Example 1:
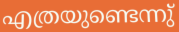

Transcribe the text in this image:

എത്രയുണ്ടെന്നു്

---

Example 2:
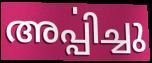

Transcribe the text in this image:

അൎപ്പിച്ചു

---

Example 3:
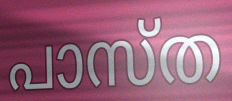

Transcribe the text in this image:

പാസ്ത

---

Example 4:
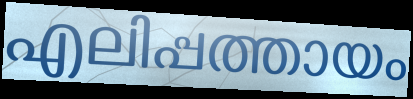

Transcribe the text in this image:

എലിപ്പത്തായം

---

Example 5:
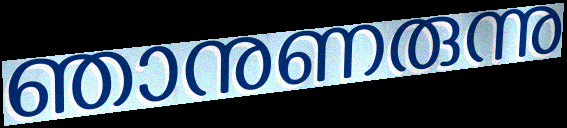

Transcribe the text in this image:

ഞാനുണരുന്നു